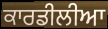
ਕਾਰਡੀਲੀਆ